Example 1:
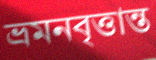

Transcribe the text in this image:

ভ্রমনবৃত্তান্ত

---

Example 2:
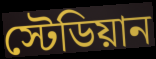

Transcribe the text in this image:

স্টেডিয়ান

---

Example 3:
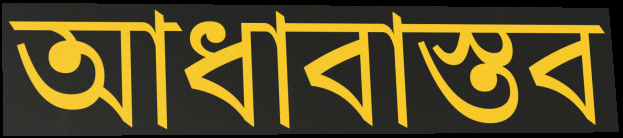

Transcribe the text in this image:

আধাবাস্তব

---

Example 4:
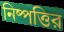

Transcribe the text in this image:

নিষ্পত্তির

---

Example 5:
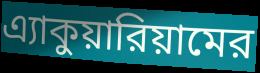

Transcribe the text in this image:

এ্যাকুয়ারিয়ামের